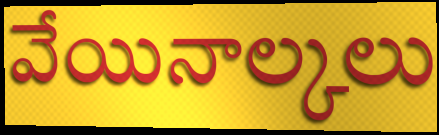
వేయినాల్కలు